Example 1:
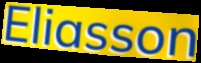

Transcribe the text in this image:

Eliasson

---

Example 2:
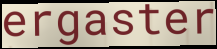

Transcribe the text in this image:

ergaster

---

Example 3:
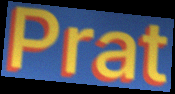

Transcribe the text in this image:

Prat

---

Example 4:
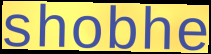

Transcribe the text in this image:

shobhe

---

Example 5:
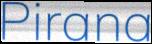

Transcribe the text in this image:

Pirana